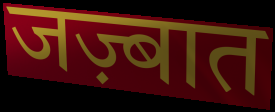
जज़्बात